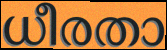
ധീരതാ